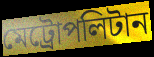
মেট্রোপলিটান